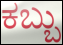
ಕಬ್ಬು